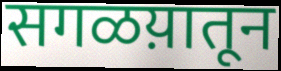
सगळय़ातून